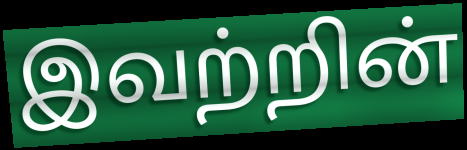
இவற்றின்